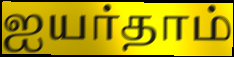
ஐயர்தாம்